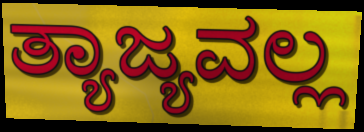
ತ್ಯಾಜ್ಯವಲ್ಲ